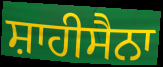
ਸ਼ਾਹੀਸੈਨਾ